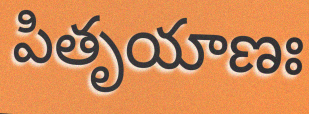
పితృయాణః